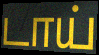
டாய்